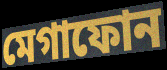
মেগাফোন